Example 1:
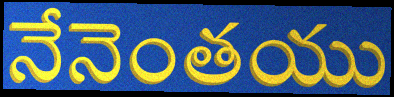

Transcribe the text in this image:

నేనెంతయు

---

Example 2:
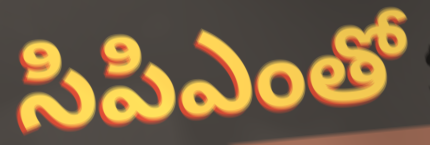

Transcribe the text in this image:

సిపిఎంతో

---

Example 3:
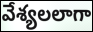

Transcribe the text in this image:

వేశ్యలలాగా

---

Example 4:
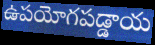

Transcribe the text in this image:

ఉపయోగపడ్డాయ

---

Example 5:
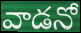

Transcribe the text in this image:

వాడనో